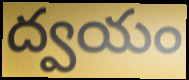
ద్వయం